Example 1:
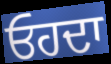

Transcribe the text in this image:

ਓਹਦਾ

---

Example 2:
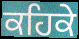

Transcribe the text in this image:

ਕਹਿਕੇ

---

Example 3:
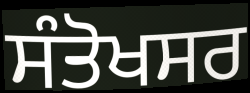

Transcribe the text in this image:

ਸੰਤੋਖਸਰ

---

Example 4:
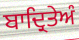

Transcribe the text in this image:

ਬਾਦ੍ਰਿਤੇਅੰ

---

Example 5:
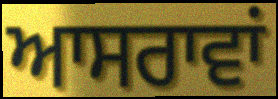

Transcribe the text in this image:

ਆਸਰਾਵਾਂ